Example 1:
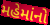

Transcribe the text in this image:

મહેમાંનો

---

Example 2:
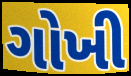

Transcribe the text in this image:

ગોખી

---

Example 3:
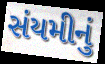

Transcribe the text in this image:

સંયમીનું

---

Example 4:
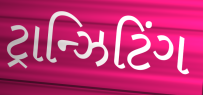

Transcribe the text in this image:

ટ્રાન્ઝિટિંગ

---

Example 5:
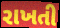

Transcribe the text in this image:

રાખતી